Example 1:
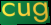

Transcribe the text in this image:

cug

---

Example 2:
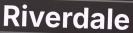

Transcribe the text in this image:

Riverdale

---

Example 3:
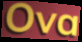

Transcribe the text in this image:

Ova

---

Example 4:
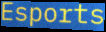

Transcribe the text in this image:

Esports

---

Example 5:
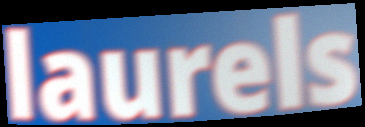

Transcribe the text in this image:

laurels